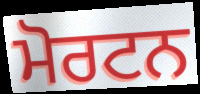
ਮੋਰਟਨ